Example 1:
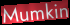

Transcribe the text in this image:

Mumkin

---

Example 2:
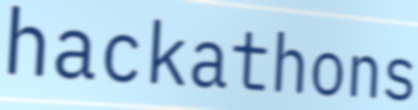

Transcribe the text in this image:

hackathons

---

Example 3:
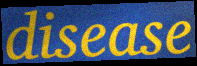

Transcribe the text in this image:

disease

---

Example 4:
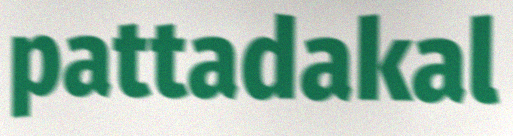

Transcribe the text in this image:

pattadakal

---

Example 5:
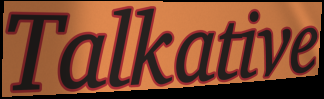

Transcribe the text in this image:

Talkative